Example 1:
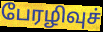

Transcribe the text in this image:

பேரழிவுச்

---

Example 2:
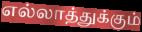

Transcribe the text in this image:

எல்லாத்துக்கும்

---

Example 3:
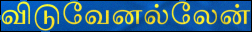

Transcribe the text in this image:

விடுவேனல்லேன்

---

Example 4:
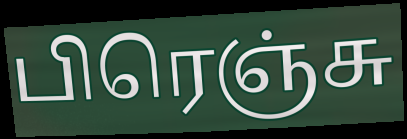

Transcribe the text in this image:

பிரெஞ்சு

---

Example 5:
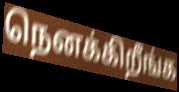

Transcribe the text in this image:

நெனக்கிறீங்க